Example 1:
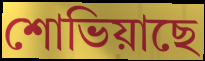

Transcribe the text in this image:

শোভিয়াছে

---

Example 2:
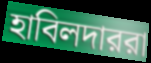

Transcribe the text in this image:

হাবিলদাররা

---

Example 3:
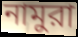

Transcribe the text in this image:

নামুরা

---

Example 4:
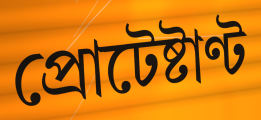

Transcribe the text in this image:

প্রোটেষ্টাণ্ট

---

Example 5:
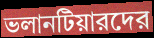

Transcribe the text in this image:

ভলানটিয়ারদের